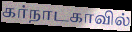
கர்நாடகாவில்